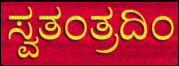
ಸ್ವತಂತ್ರದಿಂ